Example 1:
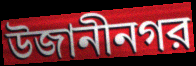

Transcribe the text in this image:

উজানীনগর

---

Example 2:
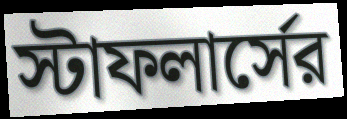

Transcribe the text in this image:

স্টাফলার্সের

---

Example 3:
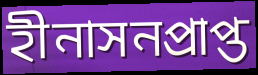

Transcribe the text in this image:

হীনাসনপ্রাপ্ত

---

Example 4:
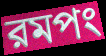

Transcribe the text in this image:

রমপং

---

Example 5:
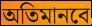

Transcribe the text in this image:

অতিমানবে